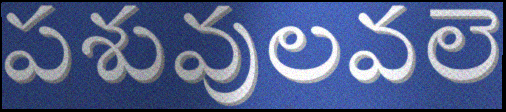
పశువులవలె